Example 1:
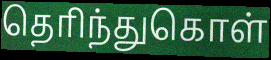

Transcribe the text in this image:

தெரிந்துகொள்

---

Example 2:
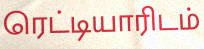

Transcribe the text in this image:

ரெட்டியாரிடம்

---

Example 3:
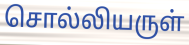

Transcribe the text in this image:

சொல்லியருள்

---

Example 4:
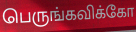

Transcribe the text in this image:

பெருங்கவிக்கோ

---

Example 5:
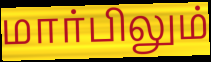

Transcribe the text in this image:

மார்பிலும்